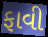
ફાવી